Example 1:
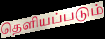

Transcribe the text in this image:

தெளியப்படும்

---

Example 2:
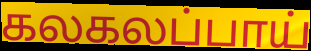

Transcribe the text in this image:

கலகலப்பாய்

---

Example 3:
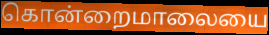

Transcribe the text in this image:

கொன்றைமாலையை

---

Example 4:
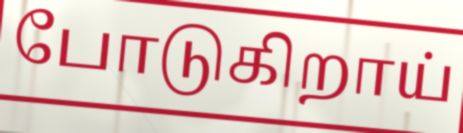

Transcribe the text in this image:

போடுகிறாய்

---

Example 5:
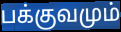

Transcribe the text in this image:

பக்குவமும்